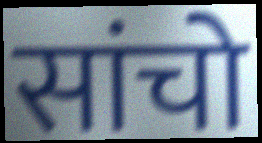
सांचो